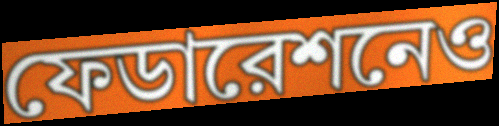
ফেডারেশনেও